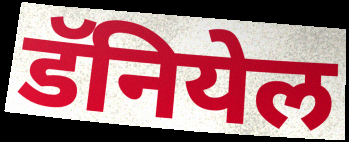
डॅनियेल